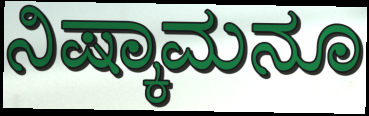
ನಿಷ್ಕಾಮನೂ